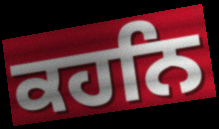
ਕਹਨਿ